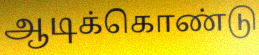
ஆடிக்கொண்டு